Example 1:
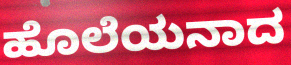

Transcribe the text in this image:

ಹೊಲೆಯನಾದ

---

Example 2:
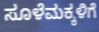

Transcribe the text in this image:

ಸೂಳೆಮಕ್ಕಳಿಗೆ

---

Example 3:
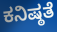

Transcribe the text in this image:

ಕನಿಷ್ಠತೆ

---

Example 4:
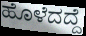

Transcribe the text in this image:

ಹೊಳೆದದ್ದೆ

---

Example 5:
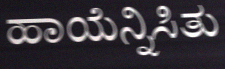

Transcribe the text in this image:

ಹಾಯೆನ್ನಿಸಿತು